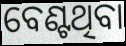
ବେଣ୍ଟଥିବା